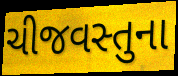
ચીજવસ્તુના